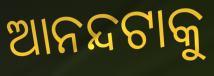
ଆନନ୍ଦଟାକୁ